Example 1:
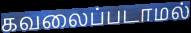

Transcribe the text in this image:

கவலைப்படாமல்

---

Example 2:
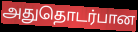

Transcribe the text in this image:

அதுதொடர்பான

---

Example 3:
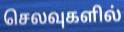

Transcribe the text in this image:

செலவுகளில்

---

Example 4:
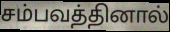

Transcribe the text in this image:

சம்பவத்தினால்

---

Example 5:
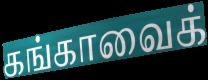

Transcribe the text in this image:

கங்காவைக்